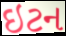
ઇટન